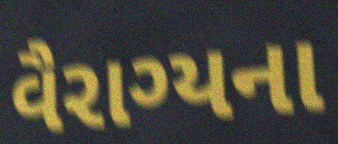
વૈરાગ્યના